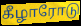
கீழாரோடு